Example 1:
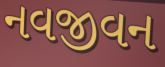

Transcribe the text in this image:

નવજીવન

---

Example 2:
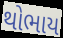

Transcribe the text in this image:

થોભાય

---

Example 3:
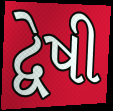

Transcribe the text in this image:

દ્વેષી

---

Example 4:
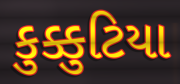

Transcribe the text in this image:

કુક્કુટિયા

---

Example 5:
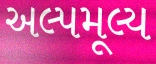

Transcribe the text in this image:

અલ્પમૂલ્ય